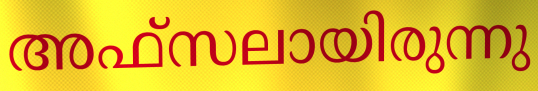
അഫ്സലായിരുന്നു